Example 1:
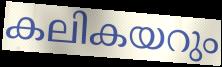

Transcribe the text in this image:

കലികയറും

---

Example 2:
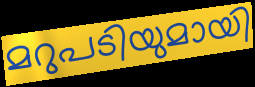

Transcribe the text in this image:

മറുപടിയുമായി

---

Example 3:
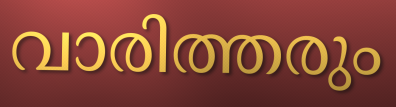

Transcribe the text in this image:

വാരിത്തരും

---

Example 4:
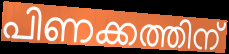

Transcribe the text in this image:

പിണക്കത്തിന്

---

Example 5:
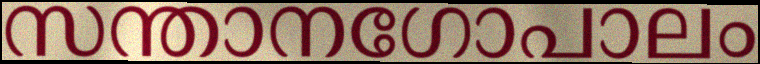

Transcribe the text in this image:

സന്താനഗോപാലം